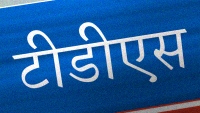
टीडीएस